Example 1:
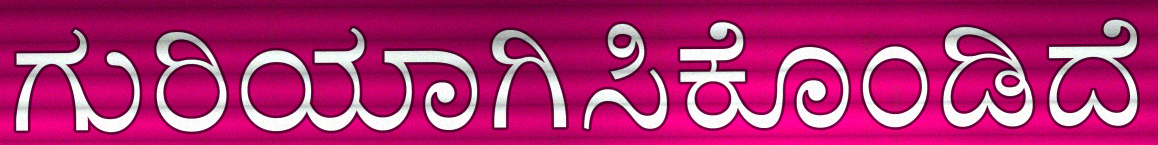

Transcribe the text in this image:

ಗುರಿಯಾಗಿಸಿಕೊಂಡಿದೆ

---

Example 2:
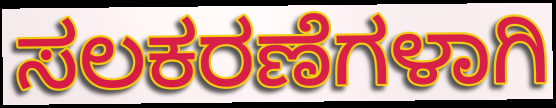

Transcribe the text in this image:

ಸಲಕರಣೆಗಳಾಗಿ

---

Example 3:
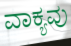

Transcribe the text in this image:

ವಾಕ್ಯವು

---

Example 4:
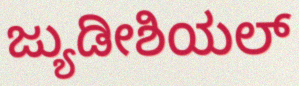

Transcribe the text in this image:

ಜ್ಯುಡೀಶಿಯಲ್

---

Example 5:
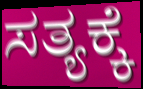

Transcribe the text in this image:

ಸತ್ಯಕ್ಕೆ